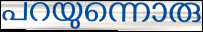
പറയുന്നൊരു